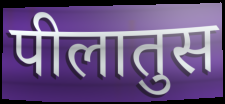
पीलातुस